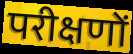
परीक्षणों